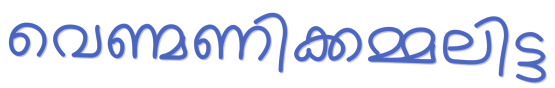
വെണ്മണിക്കമ്മലിട്ട